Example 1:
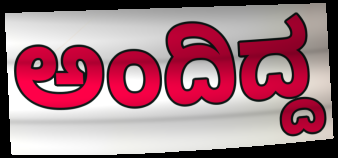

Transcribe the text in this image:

ಅಂದಿದ್ದ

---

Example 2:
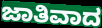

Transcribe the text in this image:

ಜಾತಿವಾದ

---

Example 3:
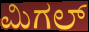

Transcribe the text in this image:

ಮಿಗಲ್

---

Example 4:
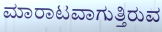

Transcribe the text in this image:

ಮಾರಾಟವಾಗುತ್ತಿರುವ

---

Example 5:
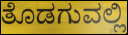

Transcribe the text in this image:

ತೊಡಗುವಲ್ಲಿ